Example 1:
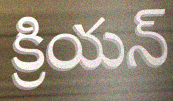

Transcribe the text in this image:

క్రియన్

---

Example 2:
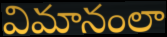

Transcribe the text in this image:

విమానంలా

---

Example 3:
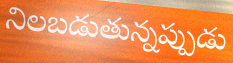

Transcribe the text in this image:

నిలబడుతున్నప్పుడు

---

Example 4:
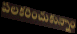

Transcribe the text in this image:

పలకరించుకున్నాం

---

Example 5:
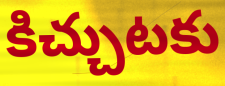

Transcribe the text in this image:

కిచ్చుటకు